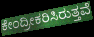
ಕೇಂದ್ರೀಕರಿಸಿರುತ್ತವೆ